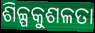
ଶିଳ୍ପକୁଶଳତା